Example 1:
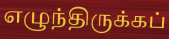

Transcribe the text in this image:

எழுந்திருக்கப்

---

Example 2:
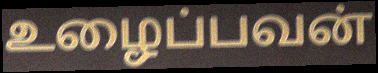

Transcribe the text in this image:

உழைப்பவன்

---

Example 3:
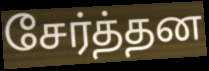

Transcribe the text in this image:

சேர்த்தன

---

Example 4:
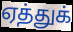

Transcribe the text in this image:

ஏத்துக்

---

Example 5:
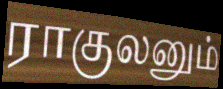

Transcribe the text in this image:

ராகுலனும்